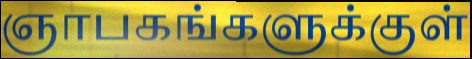
ஞாபகங்களுக்குள்